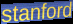
stanford